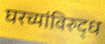
घरच्यांविरुद्ध